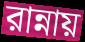
রান্নায়